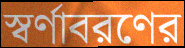
স্বর্ণাবরণের